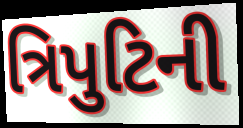
ત્રિપુટિની